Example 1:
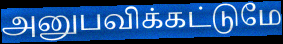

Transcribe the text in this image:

அனுபவிக்கட்டுமே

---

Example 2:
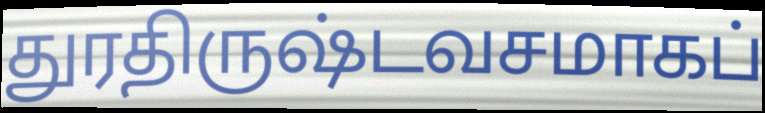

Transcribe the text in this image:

துரதிருஷ்டவசமாகப்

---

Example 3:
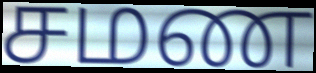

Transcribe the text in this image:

சமண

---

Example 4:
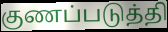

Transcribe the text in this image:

குணப்படுத்தி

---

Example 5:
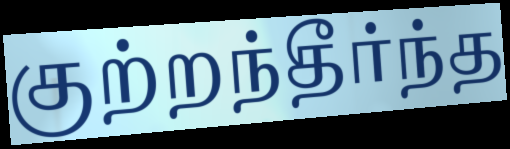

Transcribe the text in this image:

குற்றந்தீர்ந்த